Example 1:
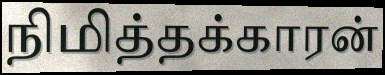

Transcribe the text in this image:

நிமித்தக்காரன்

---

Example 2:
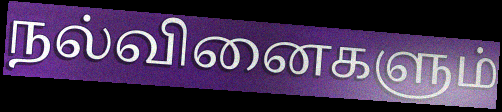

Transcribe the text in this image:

நல்வினைகளும்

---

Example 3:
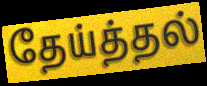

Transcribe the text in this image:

தேய்த்தல்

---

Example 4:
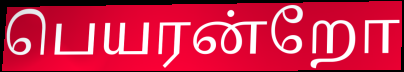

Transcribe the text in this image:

பெயரன்றோ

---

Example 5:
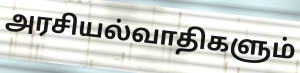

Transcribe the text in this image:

அரசியல்வாதிகளும்